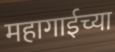
महागाईच्या